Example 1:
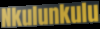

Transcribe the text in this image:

Nkulunkulu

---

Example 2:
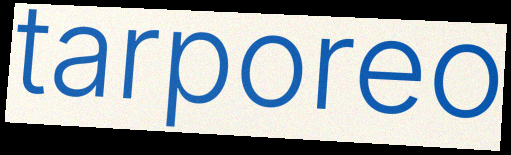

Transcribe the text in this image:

tarporeo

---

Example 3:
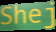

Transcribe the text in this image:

Shej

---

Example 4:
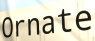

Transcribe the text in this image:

Ornate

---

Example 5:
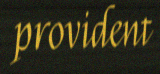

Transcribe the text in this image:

provident